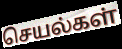
செயல்கள்